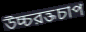
উচ্চরক্তচাপ